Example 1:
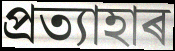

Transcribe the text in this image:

প্ৰত্যাহাৰ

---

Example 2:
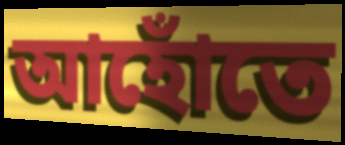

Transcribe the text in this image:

আহোঁতে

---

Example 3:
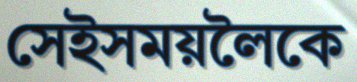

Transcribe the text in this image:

সেইসময়লৈকে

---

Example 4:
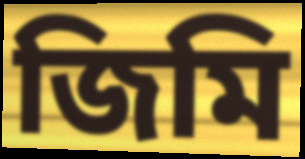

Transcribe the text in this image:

জিমি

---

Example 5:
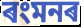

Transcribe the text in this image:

ৰংমনৰ